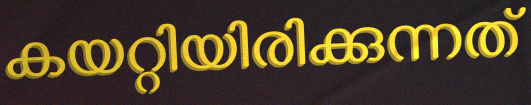
കയറ്റിയിരിക്കുന്നത്